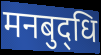
मनबुद्धि